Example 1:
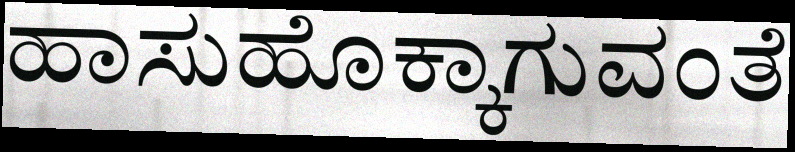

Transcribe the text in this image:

ಹಾಸುಹೊಕ್ಕಾಗುವಂತೆ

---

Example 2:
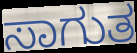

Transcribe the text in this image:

ಸಾಗುತ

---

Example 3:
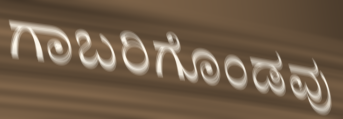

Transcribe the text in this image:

ಗಾಬರಿಗೊಂಡವು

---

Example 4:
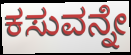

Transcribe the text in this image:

ಕಸುವನ್ನೇ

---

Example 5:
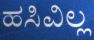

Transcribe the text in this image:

ಹಸಿವಿಲ್ಲ